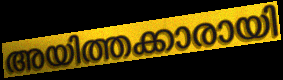
അയിത്തക്കാരായി